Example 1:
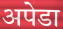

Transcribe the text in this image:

अपेडा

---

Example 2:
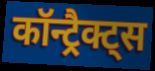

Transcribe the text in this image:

कॉन्ट्रैक्ट्स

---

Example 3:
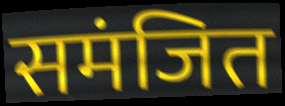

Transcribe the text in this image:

समंजित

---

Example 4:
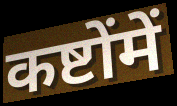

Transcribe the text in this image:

कष्टोंमें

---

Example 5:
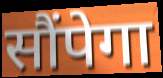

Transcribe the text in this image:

सौंपेगा